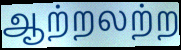
ஆற்றலற்ற